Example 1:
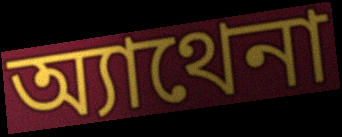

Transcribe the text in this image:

অ্যাথেনা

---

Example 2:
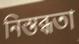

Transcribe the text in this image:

নিস্তব্ধতা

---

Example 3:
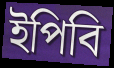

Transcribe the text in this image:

ইপিবি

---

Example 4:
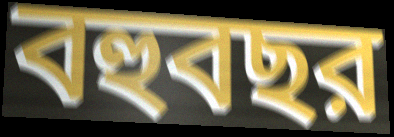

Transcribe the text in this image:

বহুবছর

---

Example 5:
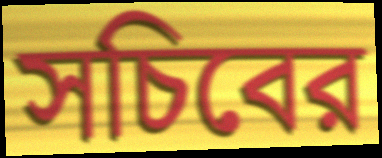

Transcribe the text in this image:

সচিবের